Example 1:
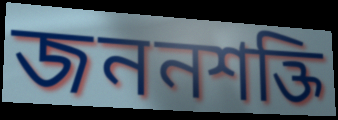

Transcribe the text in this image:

জননশক্তি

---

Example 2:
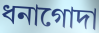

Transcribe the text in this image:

ধনাগোদা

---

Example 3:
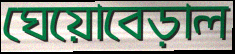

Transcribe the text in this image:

ঘেয়োবেড়াল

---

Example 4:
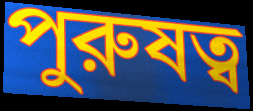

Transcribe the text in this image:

পুরুষত্ব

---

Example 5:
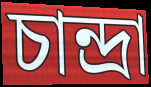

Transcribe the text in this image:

চান্দ্রা